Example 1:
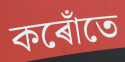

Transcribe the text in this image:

কৰোঁতে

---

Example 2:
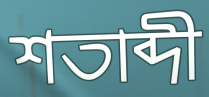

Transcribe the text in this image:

শতাব্দী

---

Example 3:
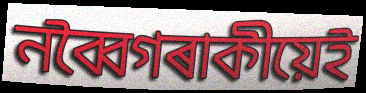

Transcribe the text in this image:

নব্বৈগৰাকীয়েই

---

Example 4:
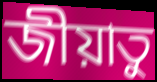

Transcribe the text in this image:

জীয়াতু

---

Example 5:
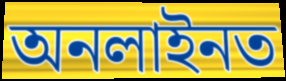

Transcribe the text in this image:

অনলাইনত